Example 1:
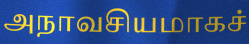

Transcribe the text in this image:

அநாவசியமாகச்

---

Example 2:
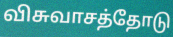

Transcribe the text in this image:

விசுவாசத்தோடு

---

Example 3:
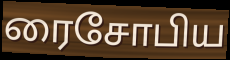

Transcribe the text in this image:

ரைசோபிய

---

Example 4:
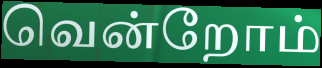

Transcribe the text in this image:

வென்றோம்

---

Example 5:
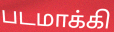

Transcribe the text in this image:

படமாக்கி